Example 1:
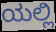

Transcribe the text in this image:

ಯಲ್ಲಿ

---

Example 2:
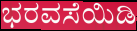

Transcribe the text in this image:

ಭರವಸೆಯಿಡಿ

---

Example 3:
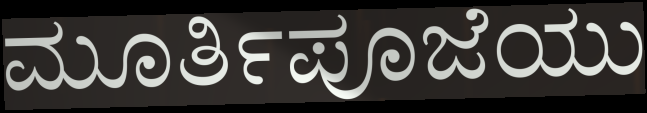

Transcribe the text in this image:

ಮೂರ್ತಿಪೂಜೆಯು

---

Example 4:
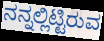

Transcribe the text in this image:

ನನ್ನಲ್ಲಿಟ್ಟಿರುವ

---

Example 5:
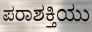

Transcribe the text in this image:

ಪರಾಶಕ್ತಿಯು